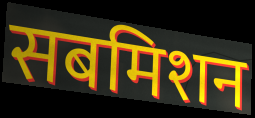
सबमिशन